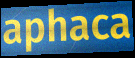
aphaca